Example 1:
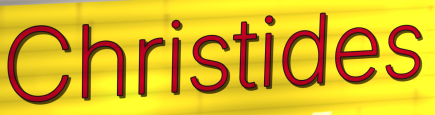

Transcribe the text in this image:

Christides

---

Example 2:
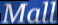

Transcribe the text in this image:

Mall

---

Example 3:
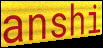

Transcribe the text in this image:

anshi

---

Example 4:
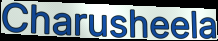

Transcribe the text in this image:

Charusheela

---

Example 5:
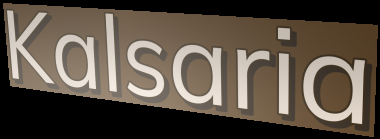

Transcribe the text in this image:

Kalsaria